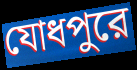
যোধপুরে